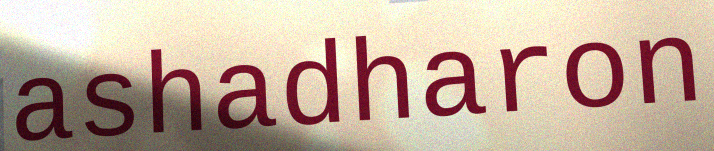
ashadharon